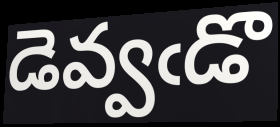
డెవ్వఁడొ